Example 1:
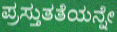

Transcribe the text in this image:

ಪ್ರಸ್ತುತತೆಯನ್ನೇ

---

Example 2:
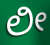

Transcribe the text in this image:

ಲೀ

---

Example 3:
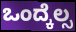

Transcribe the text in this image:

ಒಂದ್ಕೆಲ್ಸ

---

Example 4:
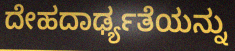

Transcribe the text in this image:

ದೇಹದಾರ್ಢ್ಯತೆಯನ್ನು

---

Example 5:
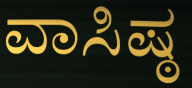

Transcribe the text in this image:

ವಾಸಿಷ್ಠ